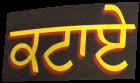
ਕਟਾਏ